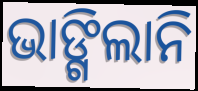
ଭାଙ୍ଗିଲାନି